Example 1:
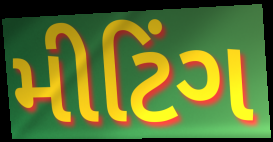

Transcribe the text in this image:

મીટિંગ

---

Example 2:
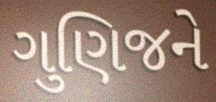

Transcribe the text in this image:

ગુણિજને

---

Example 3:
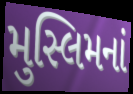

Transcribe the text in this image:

મુસ્લિમનાં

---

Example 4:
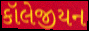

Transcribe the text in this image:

કૉલેજીયન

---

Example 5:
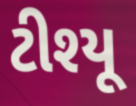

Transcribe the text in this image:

ટીશ્યૂ